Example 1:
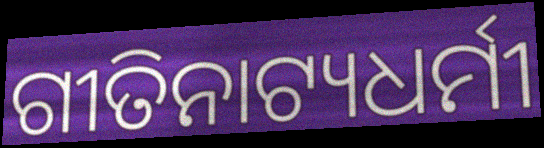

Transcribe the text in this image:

ଗୀତିନାଟ୍ୟଧର୍ମୀ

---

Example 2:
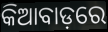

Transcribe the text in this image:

କିଆବାଡ଼ରେ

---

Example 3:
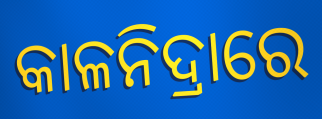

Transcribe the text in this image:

କାଳନିଦ୍ରାରେ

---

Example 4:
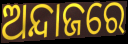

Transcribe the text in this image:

ଅନ୍ଦାଜରେ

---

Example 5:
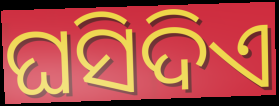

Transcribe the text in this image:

ଘସିଦିଏ